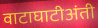
वाटाघाटीअंती